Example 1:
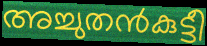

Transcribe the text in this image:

അച്ചുതൻകുട്ടീ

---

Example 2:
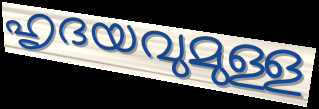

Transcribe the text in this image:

ഹൃദയവുമുള്ള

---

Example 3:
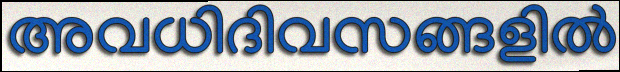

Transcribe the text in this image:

അവധിദിവസങ്ങളിൽ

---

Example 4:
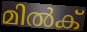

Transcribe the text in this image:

മിൽക്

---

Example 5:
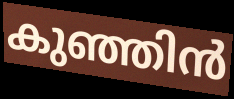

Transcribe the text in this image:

കുഞ്ഞിൻ